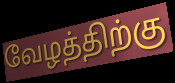
வேழத்திற்கு